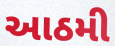
આઠમી